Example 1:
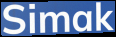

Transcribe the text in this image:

Simak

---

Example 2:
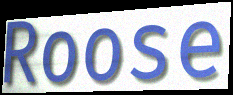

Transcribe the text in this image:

Roose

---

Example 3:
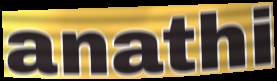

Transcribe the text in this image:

anathi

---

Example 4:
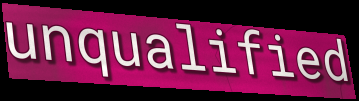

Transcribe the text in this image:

unqualified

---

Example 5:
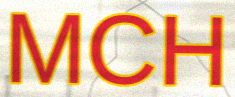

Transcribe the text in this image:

MCH